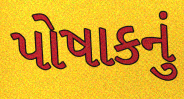
પોષાકનું